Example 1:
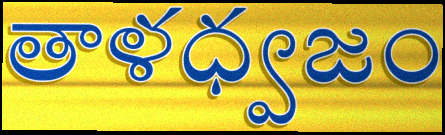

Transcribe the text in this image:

తాళధ్వజం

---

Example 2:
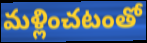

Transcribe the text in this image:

మళ్లించటంతో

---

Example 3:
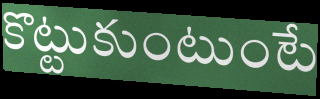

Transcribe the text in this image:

కొట్టుకుంటుంటే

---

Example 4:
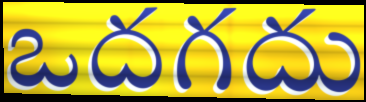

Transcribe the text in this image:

ఒదగదు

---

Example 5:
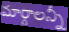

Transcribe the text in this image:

మార్గాలన్నీ